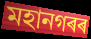
মহানগৰৰ